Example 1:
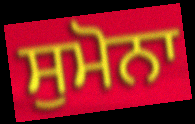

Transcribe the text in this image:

ਸੁਮੋਨਾ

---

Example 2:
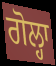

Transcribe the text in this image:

ਗੋਲ੍ਹਾ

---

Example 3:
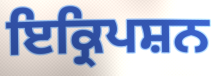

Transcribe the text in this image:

ਇਕ੍ਰਿਪਸ਼ਨ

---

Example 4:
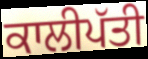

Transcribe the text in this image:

ਕਾਲੀਪੱਤੀ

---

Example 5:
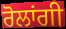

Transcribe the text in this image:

ਰੋਲਾਂਗੀ